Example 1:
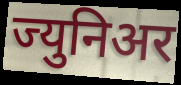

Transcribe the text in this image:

ज्युनिअर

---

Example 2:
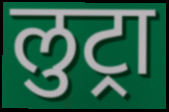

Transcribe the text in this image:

लुट्रा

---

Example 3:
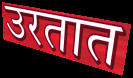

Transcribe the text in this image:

उरतात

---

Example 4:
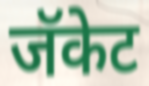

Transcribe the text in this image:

जॅकेट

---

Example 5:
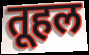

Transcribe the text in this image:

तूहल